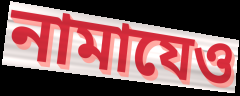
নামাযেও